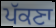
ਪੱਕਣਾ